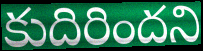
కుదిరిందని